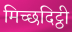
मिच्छदिट्ठी